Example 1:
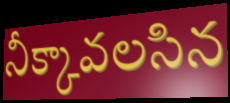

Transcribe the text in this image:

నీక్కావలసిన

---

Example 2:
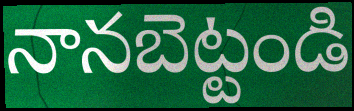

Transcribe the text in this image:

నానబెట్టండి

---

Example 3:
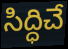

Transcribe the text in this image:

సిద్ధిచే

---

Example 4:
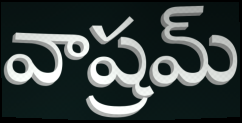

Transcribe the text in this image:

వాష్రమ్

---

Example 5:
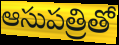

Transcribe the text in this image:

ఆసుపత్రితో